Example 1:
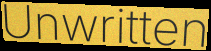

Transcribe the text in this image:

Unwritten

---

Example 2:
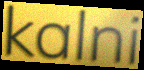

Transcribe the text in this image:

kalni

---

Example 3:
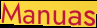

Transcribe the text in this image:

Manuas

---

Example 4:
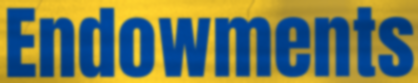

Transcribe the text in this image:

Endowments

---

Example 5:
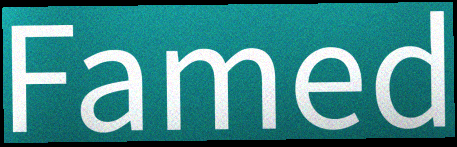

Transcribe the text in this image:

Famed